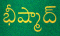
భీష్మాద్